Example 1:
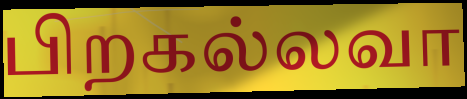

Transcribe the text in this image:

பிறகல்லவா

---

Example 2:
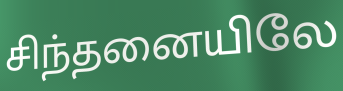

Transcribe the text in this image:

சிந்தனையிலே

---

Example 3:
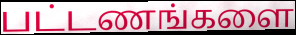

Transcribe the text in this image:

பட்டணங்களை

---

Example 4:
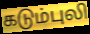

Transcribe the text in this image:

கடும்புலி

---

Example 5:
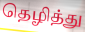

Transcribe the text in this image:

தெழித்து